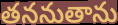
తననుతాను